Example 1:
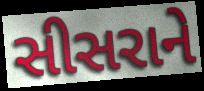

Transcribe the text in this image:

સીસરાને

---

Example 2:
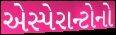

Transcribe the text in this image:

એસ્પેરાન્ટોનો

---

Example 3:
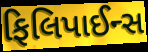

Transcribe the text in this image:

ફિલિપાઈન્સ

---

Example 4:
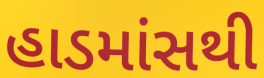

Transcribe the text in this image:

હાડમાંસથી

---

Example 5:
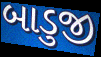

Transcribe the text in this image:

બાડુજી